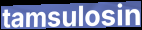
tamsulosin